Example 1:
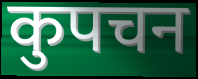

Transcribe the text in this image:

कुपचन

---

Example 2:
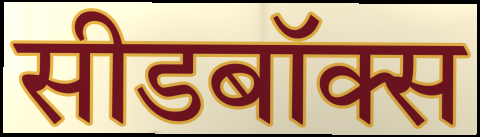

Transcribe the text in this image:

सीडबॉक्स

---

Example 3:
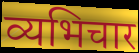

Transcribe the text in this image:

व्यभिचार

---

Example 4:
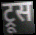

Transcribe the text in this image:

ट्रूस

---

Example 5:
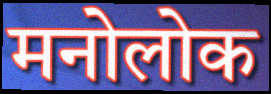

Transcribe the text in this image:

मनोलोक